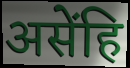
असेंहि